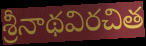
శ్రీనాథవిరచిత